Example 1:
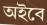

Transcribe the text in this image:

অইবে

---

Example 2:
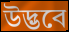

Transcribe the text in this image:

উদ্ভবে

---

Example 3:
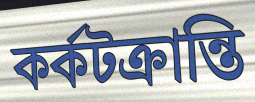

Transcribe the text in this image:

কর্কটক্রান্তি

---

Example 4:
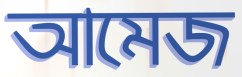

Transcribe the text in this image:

আমেজ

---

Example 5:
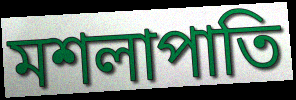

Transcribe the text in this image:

মশলাপাতি